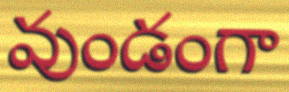
వుండంగా